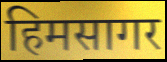
हिमसागर